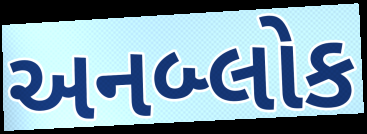
અનબ્લોક